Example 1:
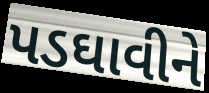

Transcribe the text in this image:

પડઘાવીને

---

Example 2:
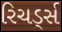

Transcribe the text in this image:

રિચર્ડ્સ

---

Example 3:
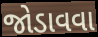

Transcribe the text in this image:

જોડાવવા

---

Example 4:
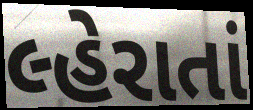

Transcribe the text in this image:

લ્હેરાતાં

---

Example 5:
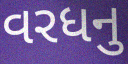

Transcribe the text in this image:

વરધનુ